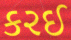
કરઈ